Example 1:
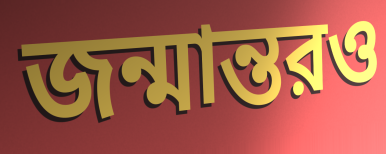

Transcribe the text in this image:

জন্মান্তরও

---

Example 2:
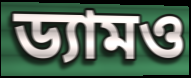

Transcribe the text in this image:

ড্যামও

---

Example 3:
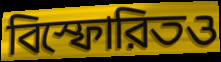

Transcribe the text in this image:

বিস্ফোরিতও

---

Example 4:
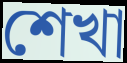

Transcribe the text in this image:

শেখা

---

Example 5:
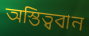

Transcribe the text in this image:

অস্তিত্ববান